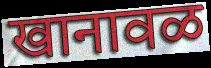
खानावळ